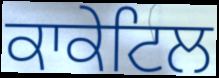
ਕਾਕੇਟਿਲ